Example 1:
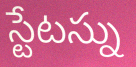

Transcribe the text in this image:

స్టేటస్ను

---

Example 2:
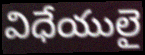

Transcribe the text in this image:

విధేయులై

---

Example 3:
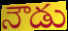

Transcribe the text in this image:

నౌడు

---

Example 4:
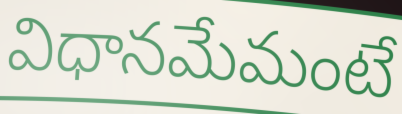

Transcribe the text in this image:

విధానమేమంటే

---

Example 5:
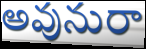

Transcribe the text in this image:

అవునురా